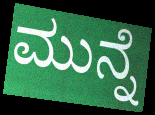
ಮುನ್ನೆ